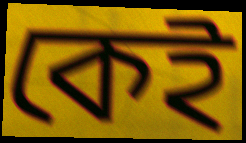
কেই